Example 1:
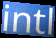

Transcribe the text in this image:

intl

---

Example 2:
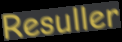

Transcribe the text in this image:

Resuller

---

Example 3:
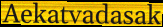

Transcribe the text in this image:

Aekatvadasak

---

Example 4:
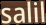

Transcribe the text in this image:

salil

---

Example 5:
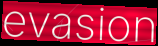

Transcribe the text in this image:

evasion